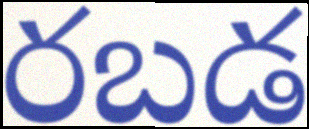
రబడ